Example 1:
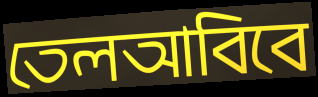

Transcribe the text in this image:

তেলআবিবে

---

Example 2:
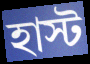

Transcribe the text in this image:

হাস্ট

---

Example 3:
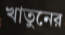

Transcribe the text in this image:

খাতুনের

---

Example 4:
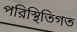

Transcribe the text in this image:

পরিস্থিতিগত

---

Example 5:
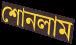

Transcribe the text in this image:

শোনলাম